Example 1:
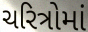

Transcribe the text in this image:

ચરિત્રોમાં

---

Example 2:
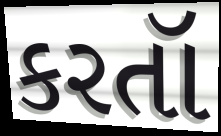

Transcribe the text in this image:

કરતૉ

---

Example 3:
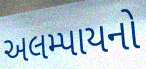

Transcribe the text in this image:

અલમ્પાયનો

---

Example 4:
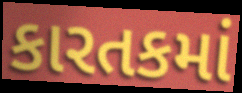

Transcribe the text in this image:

કારતકમાં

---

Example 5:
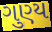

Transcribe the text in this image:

ગુણ્ય